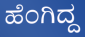
ಹೆಂಗಿದ್ದ